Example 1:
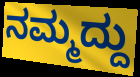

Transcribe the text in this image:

ನಮ್ಮದ್ದು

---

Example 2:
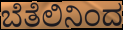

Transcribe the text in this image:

ಬೆತೆಲಿನಿಂದ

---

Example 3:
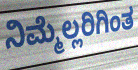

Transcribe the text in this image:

ನಿಮ್ಮೆಲ್ಲರಿಗಿಂತ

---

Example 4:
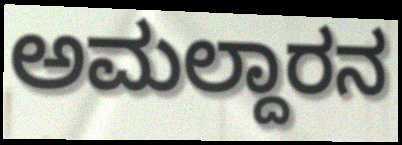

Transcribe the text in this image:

ಅಮಲ್ದಾರನ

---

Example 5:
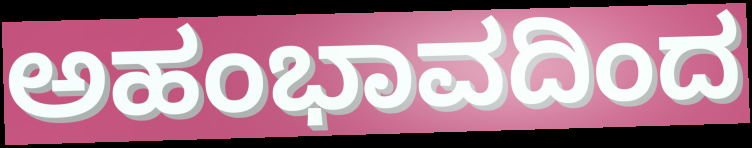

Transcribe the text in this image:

ಅಹಂಭಾವದಿಂದ